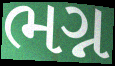
ભગ્ન